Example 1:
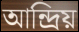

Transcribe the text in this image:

আন্দ্রিয়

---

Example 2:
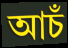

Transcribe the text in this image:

আচঁ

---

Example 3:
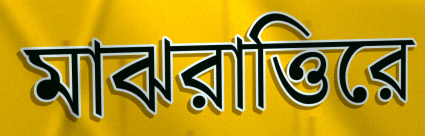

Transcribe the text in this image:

মাঝরাত্তিরে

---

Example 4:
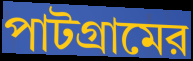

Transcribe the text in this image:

পাটগ্রামের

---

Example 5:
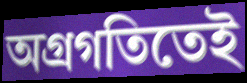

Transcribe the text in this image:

অগ্রগতিতেই